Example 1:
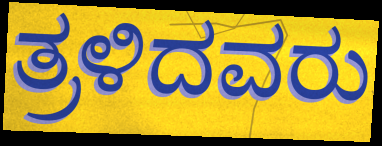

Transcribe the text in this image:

ತ್ರಳಿದವರು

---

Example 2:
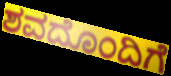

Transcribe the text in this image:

ಶವದೊಂದಿಗೆ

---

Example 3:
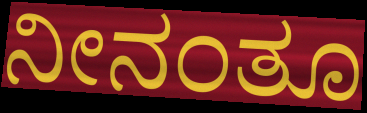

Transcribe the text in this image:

ನೀನಂತೂ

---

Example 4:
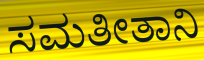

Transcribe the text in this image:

ಸಮತೀತಾನಿ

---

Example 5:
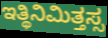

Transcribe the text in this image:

ಇತ್ಥಿನಿಮಿತ್ತಸ್ಸ